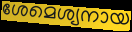
ശേമെശ്യനായ